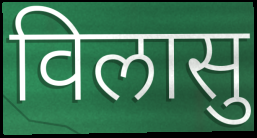
विलासु